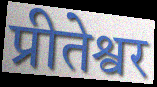
प्रीतेश्वर